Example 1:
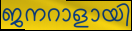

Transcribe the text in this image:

ജനറാളായി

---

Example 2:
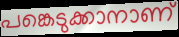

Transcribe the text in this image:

പങ്കെടുക്കാനാണ്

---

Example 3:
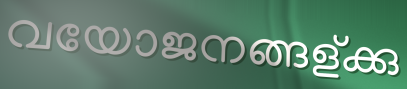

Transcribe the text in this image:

വയോജനങ്ങള്ക്കു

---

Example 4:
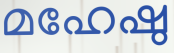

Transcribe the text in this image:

മഹേഷു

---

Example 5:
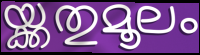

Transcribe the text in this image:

യ്ക്കതുമൂലം